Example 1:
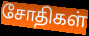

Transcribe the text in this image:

சோதிகள்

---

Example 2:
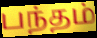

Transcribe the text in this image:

பந்தம்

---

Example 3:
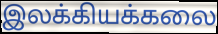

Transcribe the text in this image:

இலக்கியக்கலை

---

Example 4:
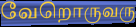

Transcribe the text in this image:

வேறொருவரு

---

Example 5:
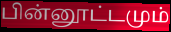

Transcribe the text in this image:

பின்னூட்டமும்